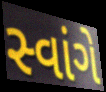
સ્વાંગે